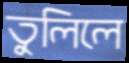
তুলিলে